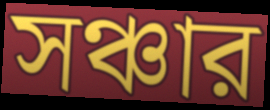
সঞ্চার